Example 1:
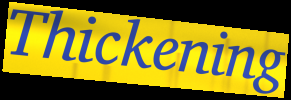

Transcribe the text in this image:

Thickening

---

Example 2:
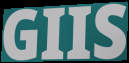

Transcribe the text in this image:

GIIS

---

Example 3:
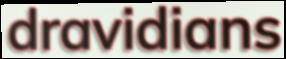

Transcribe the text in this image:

dravidians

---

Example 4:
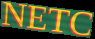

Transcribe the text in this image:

NETC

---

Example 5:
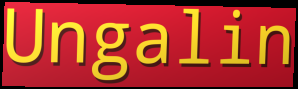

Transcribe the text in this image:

Ungalin